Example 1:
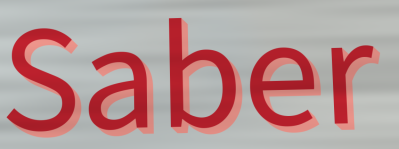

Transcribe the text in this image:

Saber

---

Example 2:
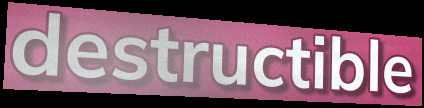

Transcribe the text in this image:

destructible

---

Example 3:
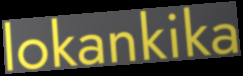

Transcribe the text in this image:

lokankika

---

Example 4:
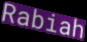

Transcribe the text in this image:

Rabiah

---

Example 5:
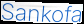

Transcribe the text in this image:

Sankofa